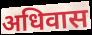
अधिवास